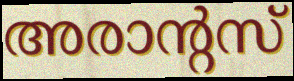
അരാന്റസ്